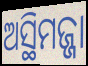
ଅସ୍ଥିମଜ୍ଜା